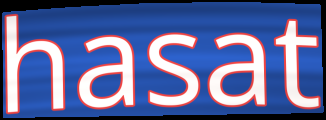
hasat